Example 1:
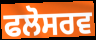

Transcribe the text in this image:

ਫਲੋਸਰਵ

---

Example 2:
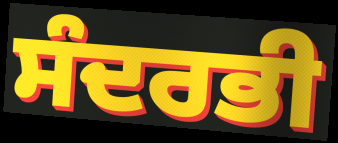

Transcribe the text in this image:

ਸੰਦਰਭੀ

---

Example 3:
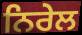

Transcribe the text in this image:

ਨਿਰੇਲ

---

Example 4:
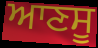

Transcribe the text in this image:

ਆਣਸੂ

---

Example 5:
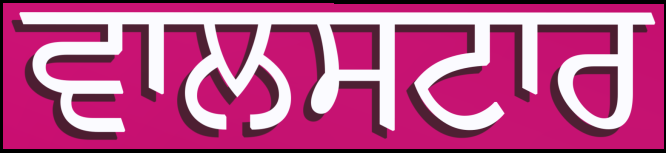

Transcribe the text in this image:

ਵਾਲਸਟਾਰ